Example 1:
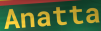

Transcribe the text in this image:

Anatta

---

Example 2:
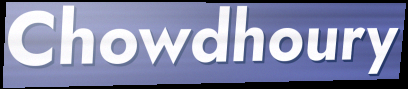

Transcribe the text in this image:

Chowdhoury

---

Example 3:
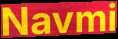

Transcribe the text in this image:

Navmi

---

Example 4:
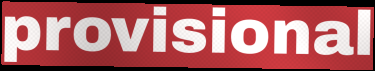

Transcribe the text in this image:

provisional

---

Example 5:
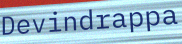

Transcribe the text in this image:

Devindrappa